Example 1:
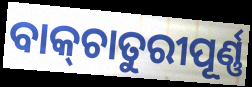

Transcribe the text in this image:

ବାକ୍‌ଚାତୁରୀପୂର୍ଣ୍ଣ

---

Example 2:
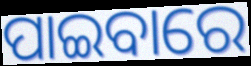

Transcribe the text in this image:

ପାଇବାରେ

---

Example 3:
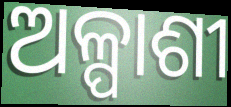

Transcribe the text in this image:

ଅଳ୍ପାଶୀ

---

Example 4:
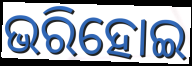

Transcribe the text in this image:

ଭରିହୋଇ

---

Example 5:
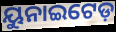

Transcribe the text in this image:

ୟୁନାଇଟେଡ଼